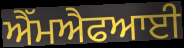
ਐੱਮਐਫਆਈ